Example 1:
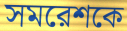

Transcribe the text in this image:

সমরেশকে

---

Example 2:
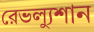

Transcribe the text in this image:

রেভল্যুশান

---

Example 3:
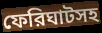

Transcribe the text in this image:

ফেরিঘাটসহ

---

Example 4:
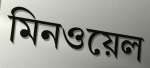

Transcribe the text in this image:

মিনওয়েল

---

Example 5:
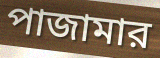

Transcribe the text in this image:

পাজামার